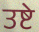
उष्टे